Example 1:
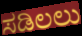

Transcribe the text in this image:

ಸಡಿಲಲು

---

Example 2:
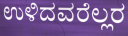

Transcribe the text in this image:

ಉಳಿದವರೆಲ್ಲರ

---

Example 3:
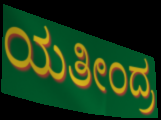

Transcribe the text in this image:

ಯತೀಂದ್ರ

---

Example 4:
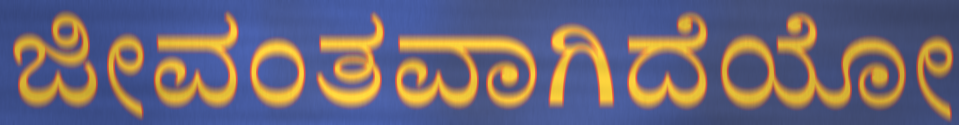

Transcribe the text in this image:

ಜೀವಂತವಾಗಿದೆಯೋ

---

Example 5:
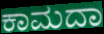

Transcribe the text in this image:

ಕಾಮದಾ